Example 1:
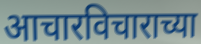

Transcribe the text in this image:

आचारविचाराच्या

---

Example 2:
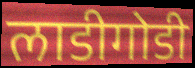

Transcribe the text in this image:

लाडीगोडी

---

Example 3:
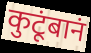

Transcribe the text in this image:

कुटूंबानं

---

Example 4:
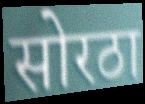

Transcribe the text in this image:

सोरठा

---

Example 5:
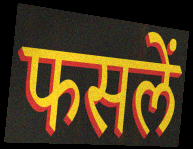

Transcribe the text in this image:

फसलें